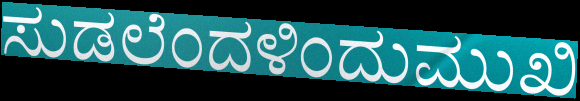
ಸುಡಲೆಂದಳಿಂದುಮುಖಿ